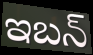
ఇబన్